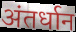
अंतर्धान